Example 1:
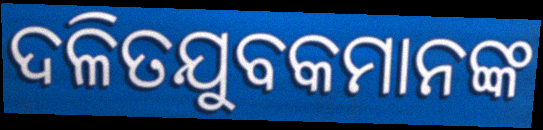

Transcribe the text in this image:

ଦଳିତଯୁବକମାନଙ୍କ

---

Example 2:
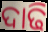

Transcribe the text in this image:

ଦାଢି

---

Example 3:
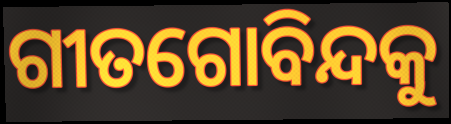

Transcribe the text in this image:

ଗୀତଗୋବିନ୍ଦକୁ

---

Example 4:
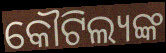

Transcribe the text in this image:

କୌଟିଲ୍ୟଙ୍କ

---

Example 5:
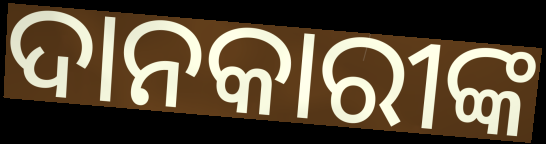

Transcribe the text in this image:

ଦାନକାରୀଙ୍କ